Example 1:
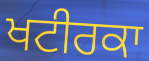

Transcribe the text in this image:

ਖਟੀਰਕਾ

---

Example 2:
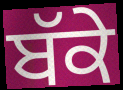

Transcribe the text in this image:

ਬੱਕੇ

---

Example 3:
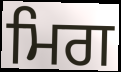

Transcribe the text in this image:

ਮਿਗ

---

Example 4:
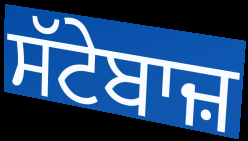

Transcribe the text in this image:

ਸੱਟੇਬਾਜ਼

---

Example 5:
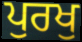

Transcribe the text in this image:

ਪੁਰਖੁ